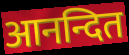
आनन्दित